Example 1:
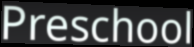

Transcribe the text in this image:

Preschool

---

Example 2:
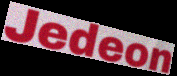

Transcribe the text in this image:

Jedeon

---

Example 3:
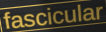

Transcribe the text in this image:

fascicular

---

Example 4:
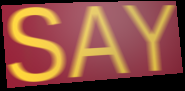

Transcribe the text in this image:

SAY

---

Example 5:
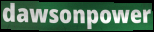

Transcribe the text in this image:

dawsonpower